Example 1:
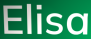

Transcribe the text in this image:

Elisa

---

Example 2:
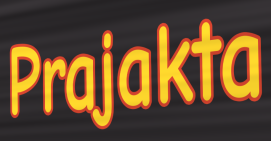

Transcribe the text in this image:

Prajakta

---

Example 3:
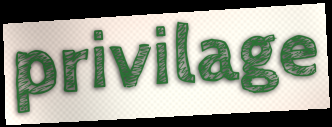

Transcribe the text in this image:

privilage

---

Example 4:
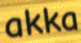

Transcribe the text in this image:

akka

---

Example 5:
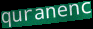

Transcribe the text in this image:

quranenc